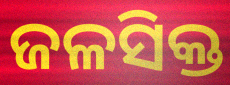
ଜଳସିକ୍ତ